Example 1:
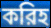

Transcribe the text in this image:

করিহ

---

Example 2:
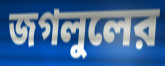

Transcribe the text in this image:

জগলুলের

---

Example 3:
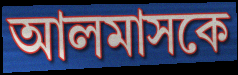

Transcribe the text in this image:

আলমাসকে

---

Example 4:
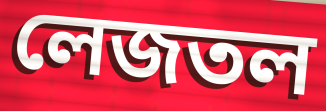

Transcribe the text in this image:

লেজতল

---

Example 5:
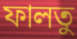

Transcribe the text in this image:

ফালতু